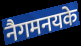
नैगमनयके